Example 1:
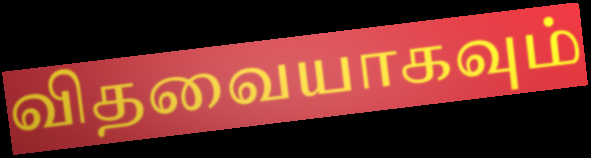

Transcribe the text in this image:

விதவையாகவும்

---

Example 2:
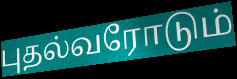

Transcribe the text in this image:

புதல்வரோடும்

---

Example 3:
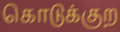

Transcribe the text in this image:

கொடுக்குற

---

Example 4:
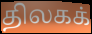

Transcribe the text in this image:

திலகக்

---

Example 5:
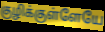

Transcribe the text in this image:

குழிக்குள்ளேயே